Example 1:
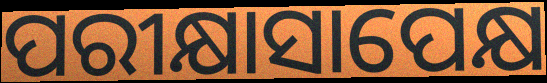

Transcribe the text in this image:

ପରୀକ୍ଷାସାପେକ୍ଷ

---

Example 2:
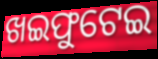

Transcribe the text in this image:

ଖଇଫୁଟେଇ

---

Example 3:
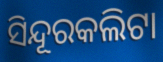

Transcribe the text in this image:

ସିନ୍ଦୂରକଲିଟା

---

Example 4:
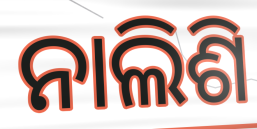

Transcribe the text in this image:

ନାଲିଶି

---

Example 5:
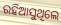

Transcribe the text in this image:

ରହିଆସୁଥିଲେ